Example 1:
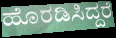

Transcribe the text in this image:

ಹೊರಡಿಸಿದ್ದರೆ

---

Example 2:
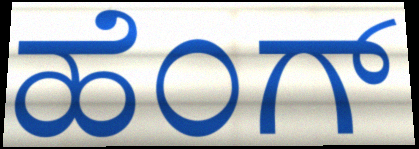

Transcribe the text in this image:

ಹೆಂಗ್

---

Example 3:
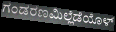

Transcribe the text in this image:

ಗಂಡರಣಮಿಲ್ಲೆಡೆಯೊಳ್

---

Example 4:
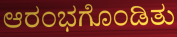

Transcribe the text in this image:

ಆರಂಭಗೊಂಡಿತು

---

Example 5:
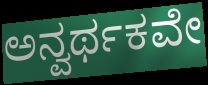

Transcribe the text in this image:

ಅನ್ವರ್ಥಕವೇ